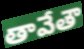
తావేతౌ